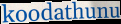
koodathunu